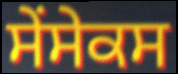
ਸੇਂਸੇਕਸ